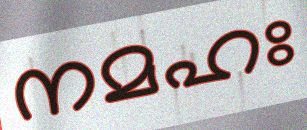
നമഹഃ